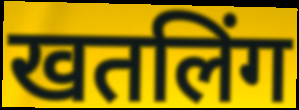
खतलिंग